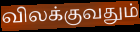
விலக்குவதும்